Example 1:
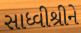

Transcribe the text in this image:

સાધ્વીશ્રીને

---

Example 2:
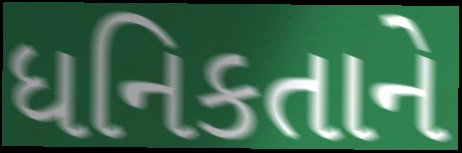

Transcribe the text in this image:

ધનિકતાને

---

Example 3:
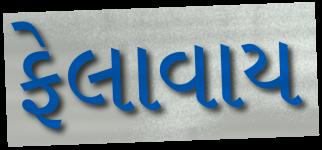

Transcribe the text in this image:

ફેલાવાય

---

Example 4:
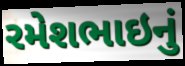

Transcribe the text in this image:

રમેશભાઇનું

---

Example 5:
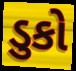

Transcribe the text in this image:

ડુકો